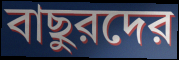
বাছুরদের